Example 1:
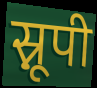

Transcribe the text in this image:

स्नूपी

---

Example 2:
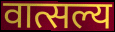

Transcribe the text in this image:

वात्सल्य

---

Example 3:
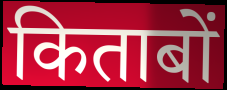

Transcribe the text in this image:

किताबों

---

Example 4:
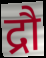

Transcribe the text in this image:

द्रौ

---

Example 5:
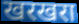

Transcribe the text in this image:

खरखरा